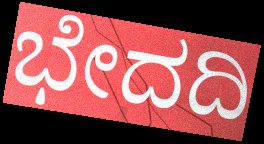
ಭೇದದಿ